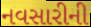
નવસારીની